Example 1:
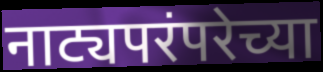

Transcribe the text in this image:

नाट्यपरंपरेच्या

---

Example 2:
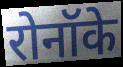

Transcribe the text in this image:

रोनॉके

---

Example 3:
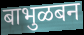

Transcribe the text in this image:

बाभुळबन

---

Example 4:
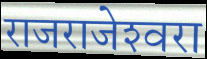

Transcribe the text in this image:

राजराजेश्वरा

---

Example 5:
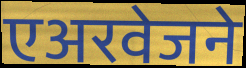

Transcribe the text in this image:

एअरवेजने